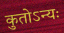
कुतोऽन्यः